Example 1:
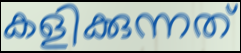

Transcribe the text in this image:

കളിക്കുന്നത്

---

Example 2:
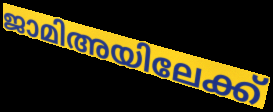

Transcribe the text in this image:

ജാമിഅയിലേക്ക്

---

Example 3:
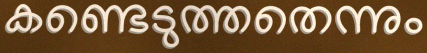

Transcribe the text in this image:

കണ്ടെടുത്തതെന്നും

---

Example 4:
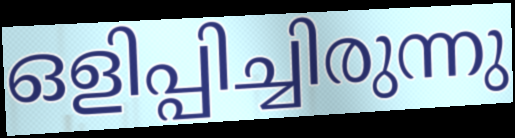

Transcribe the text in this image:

ഒളിപ്പിച്ചിരുന്നു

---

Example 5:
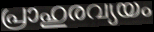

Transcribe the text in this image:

പ്രാഹുരവ്യയം